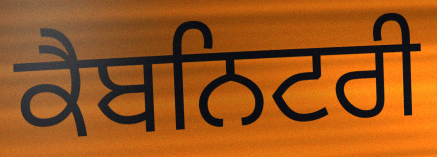
ਕੈਬਨਿਟਰੀ